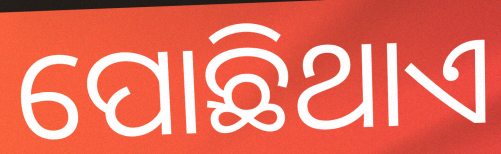
ପୋଛିଥାଏ